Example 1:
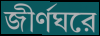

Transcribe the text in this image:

জীর্ণঘরে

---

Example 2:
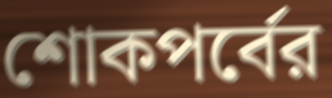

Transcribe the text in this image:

শোকপর্বের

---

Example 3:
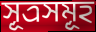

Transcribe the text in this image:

সূত্রসমূহ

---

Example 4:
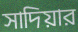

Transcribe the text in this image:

সাদিয়ার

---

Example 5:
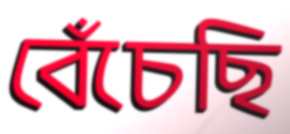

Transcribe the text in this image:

বেঁচেছি